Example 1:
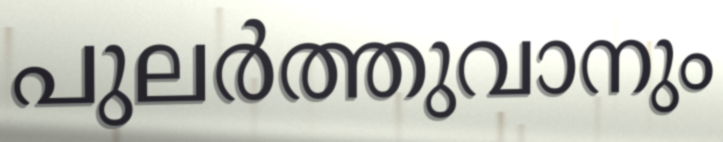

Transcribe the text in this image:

പുലർത്തുവാനും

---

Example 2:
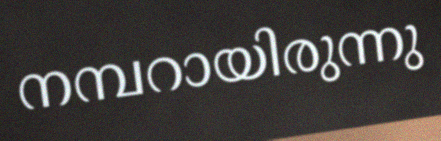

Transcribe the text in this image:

നമ്പറായിരുന്നു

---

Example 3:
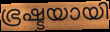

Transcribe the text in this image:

ഭ്രഷ്ടയായി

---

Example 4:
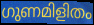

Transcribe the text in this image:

ഗുണമിളിതം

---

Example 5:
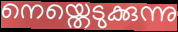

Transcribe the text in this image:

നെയ്തെടുക്കുന്നു